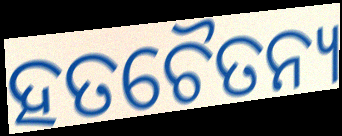
ହତଚୈତନ୍ୟ